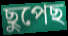
ছুপেছ